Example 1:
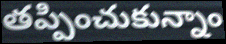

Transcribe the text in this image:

తప్పించుకున్నాం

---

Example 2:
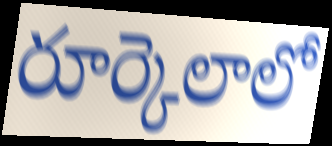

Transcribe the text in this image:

రూర్కెలాలో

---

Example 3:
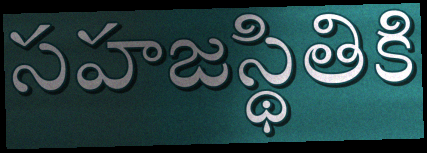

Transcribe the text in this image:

సహజస్థితికి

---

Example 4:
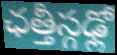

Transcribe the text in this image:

ఛత్తీస్గఢ్లో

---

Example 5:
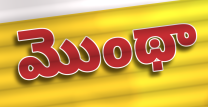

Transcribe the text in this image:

మొంథా